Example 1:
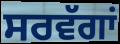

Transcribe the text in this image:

ਸਰਵੱਗਾਂ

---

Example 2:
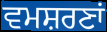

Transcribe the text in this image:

ਵਮਸ਼ਰਣਾਂ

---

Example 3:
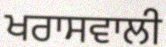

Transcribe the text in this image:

ਖਰਾਸਵਾਲੀ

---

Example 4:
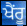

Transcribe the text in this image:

ਖੈਂਰੂ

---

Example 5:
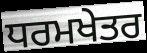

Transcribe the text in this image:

ਧਰਮਖੇਤਰ